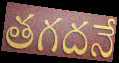
తగదనే